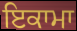
ਇਕਾਮਾ